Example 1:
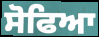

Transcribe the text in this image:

ਸੋਫਿਆ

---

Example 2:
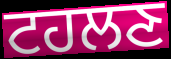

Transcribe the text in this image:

ਟਹਲਣ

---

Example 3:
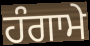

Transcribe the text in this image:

ਹੰਗਾਮੇ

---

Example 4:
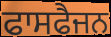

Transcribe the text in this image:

ਫਾਸਫੈਜਨ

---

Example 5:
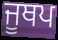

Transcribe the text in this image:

ਜੂਥਪ